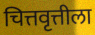
चित्तवृत्तीला